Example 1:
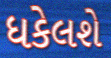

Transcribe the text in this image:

ધકેલશે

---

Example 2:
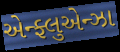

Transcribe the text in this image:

એન્ફ્લુએન્ઝા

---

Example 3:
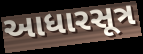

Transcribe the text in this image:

આધારસૂત્ર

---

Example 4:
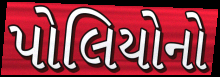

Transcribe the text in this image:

પોલિયોનો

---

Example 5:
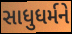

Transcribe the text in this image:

સાધુધર્મને